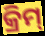
କ୍ରିମ୍